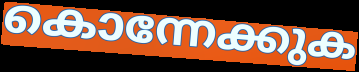
കൊന്നേക്കുക